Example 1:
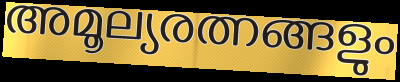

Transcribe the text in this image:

അമൂല്യരത്നങ്ങളും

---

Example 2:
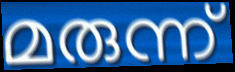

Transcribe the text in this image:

മരുന്ന്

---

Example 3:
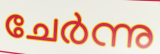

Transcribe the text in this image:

ചേർന്നു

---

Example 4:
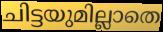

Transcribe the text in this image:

ചിട്ടയുമില്ലാതെ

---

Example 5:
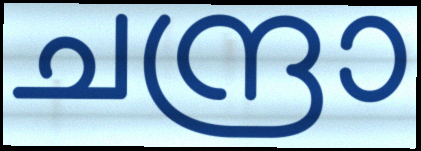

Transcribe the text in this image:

ചന്ദ്രാ